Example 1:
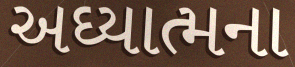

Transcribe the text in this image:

અઘ્યાત્મના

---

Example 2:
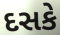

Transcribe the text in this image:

દસકે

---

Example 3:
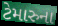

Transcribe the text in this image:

ટેમારુના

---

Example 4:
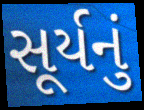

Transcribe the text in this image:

સૂર્યનું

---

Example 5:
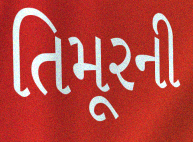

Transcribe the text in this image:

તિમૂરની